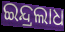
ଇନ୍ଦ୍ରଲାଧ